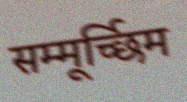
सम्मूर्च्छिम